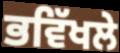
ਭਵਿੱਖਲੇ